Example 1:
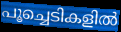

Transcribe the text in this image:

പൂച്ചെടികളിൽ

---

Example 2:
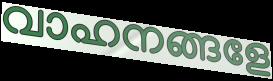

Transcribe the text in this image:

വാഹനങ്ങളേ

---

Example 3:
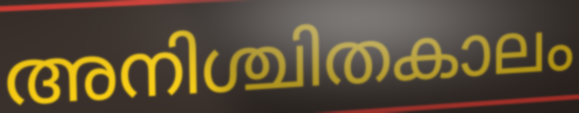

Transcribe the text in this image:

അനിശ്ചിതകാലം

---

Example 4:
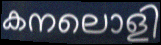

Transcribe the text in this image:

കനലൊളി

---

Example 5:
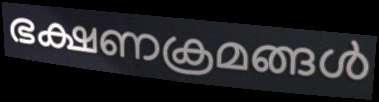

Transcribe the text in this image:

ഭക്ഷണക്രമങ്ങൾ